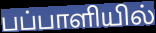
பப்பாளியில்